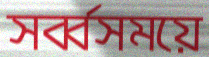
সর্ব্বসময়ে